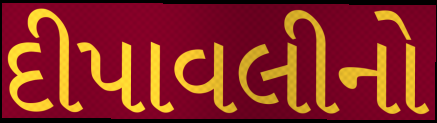
દીપાવલીનો